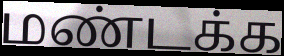
மண்டக்க